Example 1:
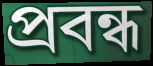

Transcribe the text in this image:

প্ৰবন্ধ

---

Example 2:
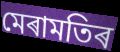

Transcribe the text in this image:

মেৰামতিৰ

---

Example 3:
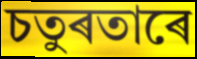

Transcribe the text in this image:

চতুৰতাৰে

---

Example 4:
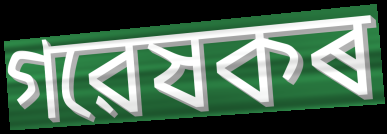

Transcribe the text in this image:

গৱেষকৰ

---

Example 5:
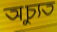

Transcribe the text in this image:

অচ্যুত